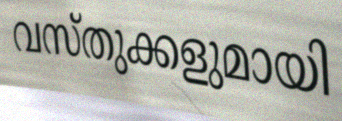
വസ്തുക്കളുമായി